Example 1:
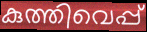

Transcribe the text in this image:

കുത്തിവെപ്പ്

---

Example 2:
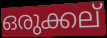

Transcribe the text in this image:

ഒരുക്കല്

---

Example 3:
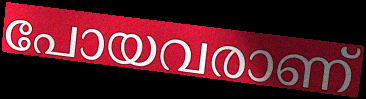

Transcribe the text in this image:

പോയവരാണ്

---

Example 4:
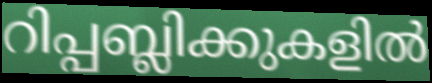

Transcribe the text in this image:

റിപ്പബ്ലിക്കുകളിൽ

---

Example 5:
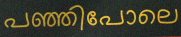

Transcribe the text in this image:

പഞ്ഞിപോലെ